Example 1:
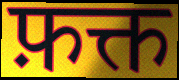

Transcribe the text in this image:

फ़क्त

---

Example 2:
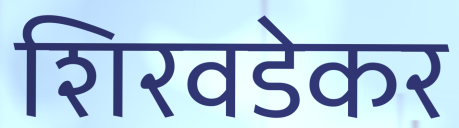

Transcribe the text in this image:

शिरवडेकर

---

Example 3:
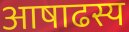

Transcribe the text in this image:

आषाढस्य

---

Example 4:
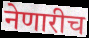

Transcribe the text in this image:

नेणारीच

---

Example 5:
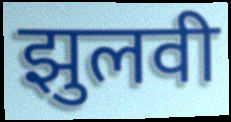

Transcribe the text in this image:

झुलवी